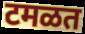
टमळत